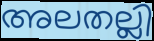
അലതല്ലി